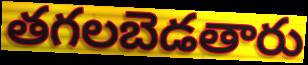
తగలబెడతారు